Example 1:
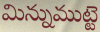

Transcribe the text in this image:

మిన్నుముట్టె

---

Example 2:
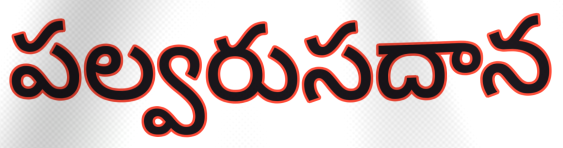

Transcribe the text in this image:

పల్వరుసదాన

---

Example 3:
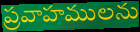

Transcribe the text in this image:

ప్రవాహములను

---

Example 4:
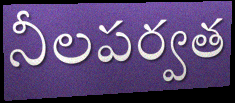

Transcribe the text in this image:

నీలపర్వత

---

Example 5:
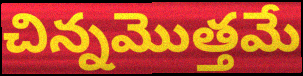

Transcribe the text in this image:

చిన్నమొత్తమే